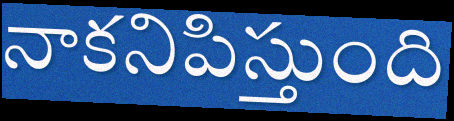
నాకనిపిస్తుంది